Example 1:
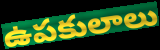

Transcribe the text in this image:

ఉపకులాలు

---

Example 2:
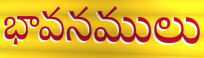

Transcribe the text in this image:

భావనములు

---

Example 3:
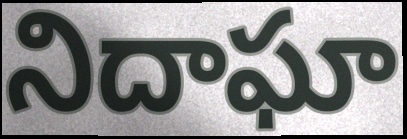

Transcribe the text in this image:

నిదాఘా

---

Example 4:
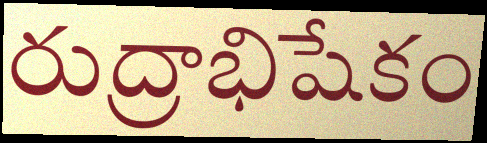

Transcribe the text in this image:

రుద్రాభిషేకం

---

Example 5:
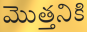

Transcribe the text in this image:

మొత్తనికి